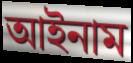
আইনাম